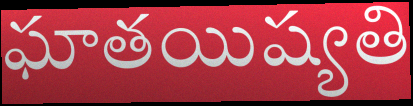
ఘాతయిష్యతి